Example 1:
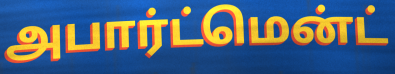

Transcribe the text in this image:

அபார்ட்மென்ட்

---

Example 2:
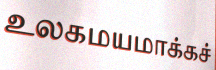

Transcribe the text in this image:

உலகமயமாக்கச்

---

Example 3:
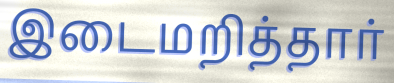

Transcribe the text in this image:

இடைமறித்தார்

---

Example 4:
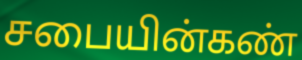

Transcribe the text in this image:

சபையின்கண்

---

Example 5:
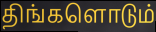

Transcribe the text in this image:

திங்களொடும்